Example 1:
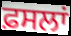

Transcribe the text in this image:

ਫ਼ਸਲਾਂ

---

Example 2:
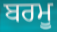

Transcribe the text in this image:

ਬਰਮੂ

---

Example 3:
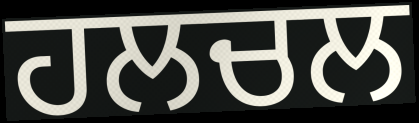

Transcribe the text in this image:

ਹਲਚਲ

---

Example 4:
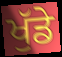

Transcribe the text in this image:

ਖੁੱਡੇ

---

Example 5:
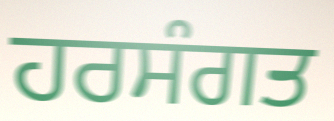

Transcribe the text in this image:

ਹਰਸੰਗਤ